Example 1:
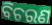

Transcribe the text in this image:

ବିଚରଣ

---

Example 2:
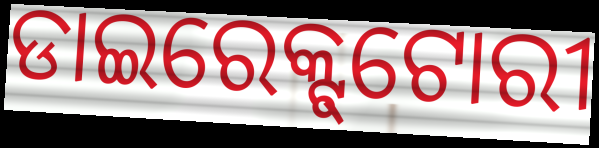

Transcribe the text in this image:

ଡାଇରେକ୍ଟ୍‌ଟୋରୀ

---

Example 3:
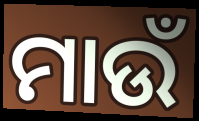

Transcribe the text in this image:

ମାଉଁ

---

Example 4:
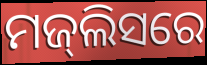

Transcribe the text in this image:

ମଜ୍‌ଲିସରେ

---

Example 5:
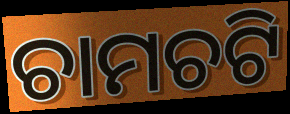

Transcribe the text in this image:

ଚାମଚଟି